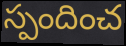
స్పందించ